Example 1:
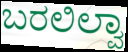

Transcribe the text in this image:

ಬರಲಿಲ್ವಾ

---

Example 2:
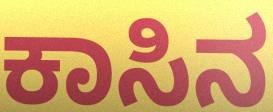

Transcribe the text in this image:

ಕಾಸಿನ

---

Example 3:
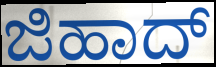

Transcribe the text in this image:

ಜಿಹಾದ್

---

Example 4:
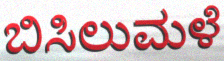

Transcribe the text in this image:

ಬಿಸಿಲುಮಳೆ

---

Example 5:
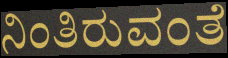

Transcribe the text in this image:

ನಿಂತಿರುವಂತೆ